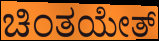
ಚಿಂತಯೇತ್